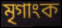
মৃগাংক